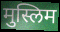
मुस्लिम